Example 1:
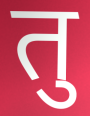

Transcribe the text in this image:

तु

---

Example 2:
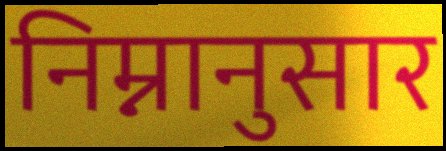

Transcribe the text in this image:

निम्नानुसार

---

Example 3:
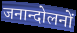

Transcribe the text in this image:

जनान्दोलनों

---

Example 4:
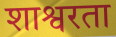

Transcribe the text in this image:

शाश्वरता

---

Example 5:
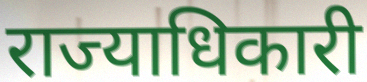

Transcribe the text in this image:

राज्याधिकारी